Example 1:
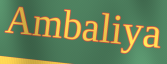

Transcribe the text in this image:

Ambaliya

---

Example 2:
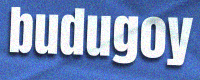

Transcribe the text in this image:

budugoy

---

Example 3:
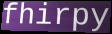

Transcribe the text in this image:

fhirpy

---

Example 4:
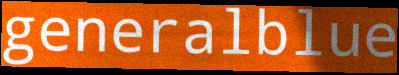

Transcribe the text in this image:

generalblue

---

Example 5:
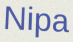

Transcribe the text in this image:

Nipa